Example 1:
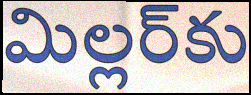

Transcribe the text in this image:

మిల్లర్‌కు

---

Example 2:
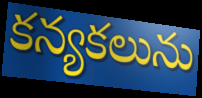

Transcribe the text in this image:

కన్యకలును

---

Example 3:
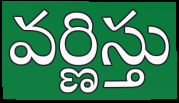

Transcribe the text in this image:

వర్ణిస్తు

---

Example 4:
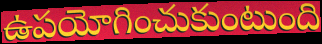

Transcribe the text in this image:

ఉపయోగించుకుంటుంది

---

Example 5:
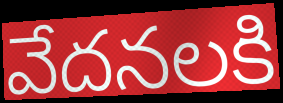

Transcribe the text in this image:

వేదనలకి